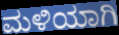
ಮಳಿಯಾಗಿ